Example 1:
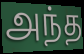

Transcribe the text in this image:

அந்த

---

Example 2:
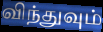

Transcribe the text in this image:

விந்துவும்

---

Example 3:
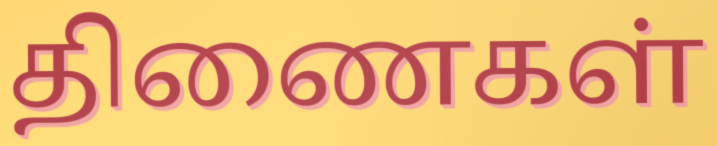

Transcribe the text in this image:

திணைகள்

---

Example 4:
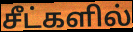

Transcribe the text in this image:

சீட்களில்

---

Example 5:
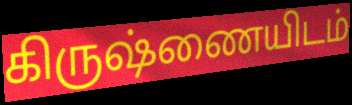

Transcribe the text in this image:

கிருஷ்ணையிடம்